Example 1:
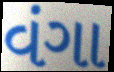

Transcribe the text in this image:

વંગા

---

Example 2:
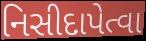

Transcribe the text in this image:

નિસીદાપેત્વા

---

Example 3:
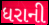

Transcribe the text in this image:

ધરાની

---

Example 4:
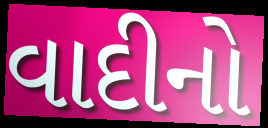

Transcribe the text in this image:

વાદીનો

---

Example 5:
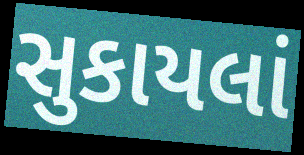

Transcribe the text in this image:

સુકાયલાં